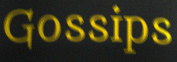
Gossips